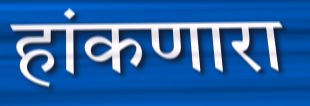
हांकणारा